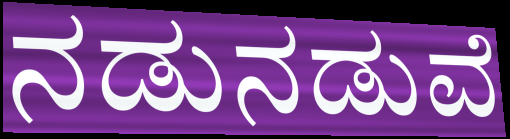
ನಡುನಡುವೆ